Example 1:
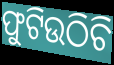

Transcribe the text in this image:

ଫୁଟିଉଠିଚି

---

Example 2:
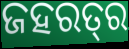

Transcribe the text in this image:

ଜହରତ୍‌ର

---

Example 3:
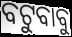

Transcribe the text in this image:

ବଟୁବାବୁ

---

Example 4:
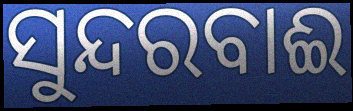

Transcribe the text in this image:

ସୁନ୍ଦରବାଈ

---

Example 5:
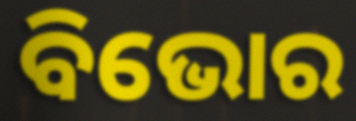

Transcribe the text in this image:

ବିଭୋର